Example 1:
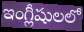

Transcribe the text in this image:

ఇంగ్లీషులలో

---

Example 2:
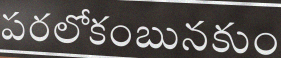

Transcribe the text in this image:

పరలోకంబునకుం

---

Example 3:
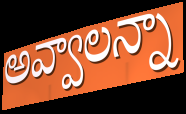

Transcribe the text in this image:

అవ్వాలన్నా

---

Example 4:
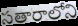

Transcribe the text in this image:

సతారాలోని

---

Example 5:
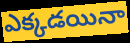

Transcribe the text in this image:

ఎక్కడయినా